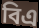
বিএ